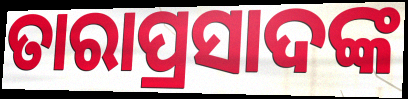
ତାରାପ୍ରସାଦଙ୍କ